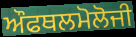
ਔਫਥਲਮੋਲੋਜੀ